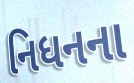
નિધનના